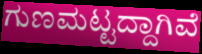
ಗುಣಮಟ್ಟದ್ದಾಗಿವೆ